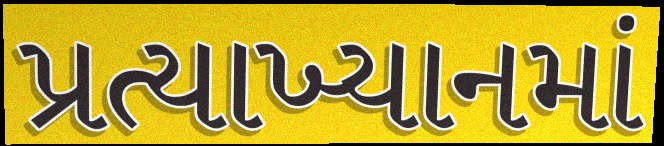
પ્રત્યાખ્યાનમાં